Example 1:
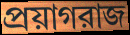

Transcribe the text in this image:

প্রয়াগরাজ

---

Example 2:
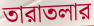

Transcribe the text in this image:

তারাতলার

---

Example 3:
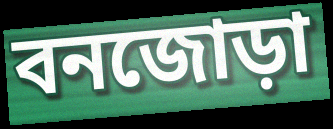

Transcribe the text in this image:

বনজোড়া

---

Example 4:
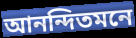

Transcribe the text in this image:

আনন্দিতমনে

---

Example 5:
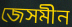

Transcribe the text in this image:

জেসমীন